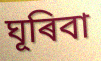
ঘূৰিবা